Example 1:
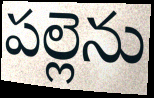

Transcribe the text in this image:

పల్లెను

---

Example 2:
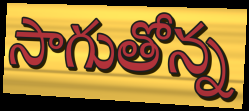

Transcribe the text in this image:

సాగుతోన్న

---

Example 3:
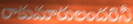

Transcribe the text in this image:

రాకుమారులందరినీ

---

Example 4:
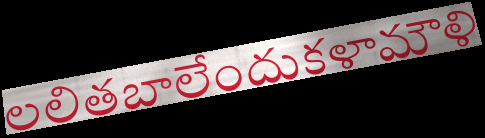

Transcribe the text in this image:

లలితబాలేందుకళామౌళి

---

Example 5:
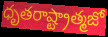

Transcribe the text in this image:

ధృతరాష్ట్రాత్మజో